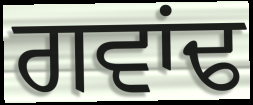
ਗਵਾਂਢ